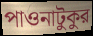
পাওনাটুকুর